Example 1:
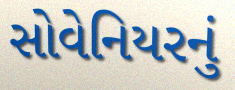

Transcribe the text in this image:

સોવેનિયરનું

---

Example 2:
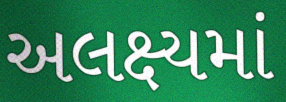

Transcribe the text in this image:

અલક્ષ્યમાં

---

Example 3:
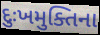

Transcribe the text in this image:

દુઃખમુક્તિના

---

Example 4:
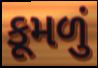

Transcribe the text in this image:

કૂમળું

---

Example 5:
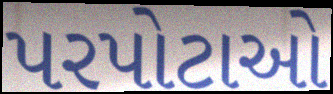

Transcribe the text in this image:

પરપોટાઓ